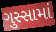
ગુસ્સામાં